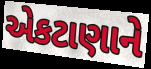
એકટાણાને